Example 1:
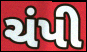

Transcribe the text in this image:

ચંપી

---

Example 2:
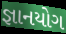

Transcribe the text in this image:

જ્ઞાનયોગ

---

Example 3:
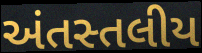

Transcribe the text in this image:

અંતસ્તલીય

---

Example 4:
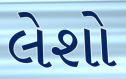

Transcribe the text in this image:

લેશો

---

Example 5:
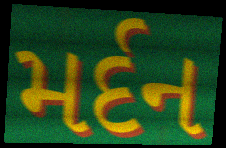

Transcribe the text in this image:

મર્દન